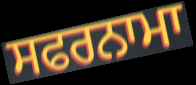
ਸਫਰਨਾਮਾ